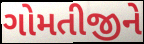
ગોમતીજીને